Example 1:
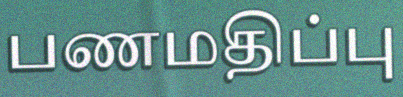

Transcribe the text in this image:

பணமதிப்பு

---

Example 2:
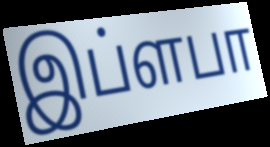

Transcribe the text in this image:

இப்ளபா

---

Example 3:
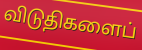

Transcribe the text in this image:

விடுதிகளைப்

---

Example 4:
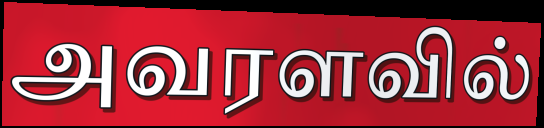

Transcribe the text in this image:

அவரளவில்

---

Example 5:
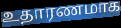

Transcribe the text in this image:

உதாரணமாக